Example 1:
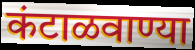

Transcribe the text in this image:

कंटाळवाण्या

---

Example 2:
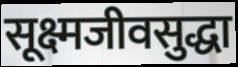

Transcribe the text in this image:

सूक्ष्मजीवसुद्धा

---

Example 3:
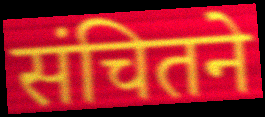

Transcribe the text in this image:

संचितने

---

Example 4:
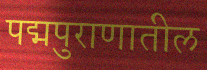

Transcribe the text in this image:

पद्मपुराणातील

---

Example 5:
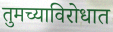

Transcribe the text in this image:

तुमच्याविरोधात